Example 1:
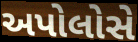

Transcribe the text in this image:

અપોલોસે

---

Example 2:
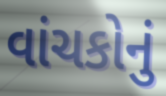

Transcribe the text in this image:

વાંચકોનું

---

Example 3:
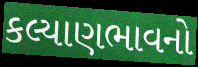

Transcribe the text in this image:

કલ્યાણભાવનો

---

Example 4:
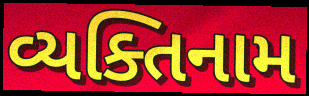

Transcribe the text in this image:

વ્યક્તિનામ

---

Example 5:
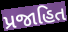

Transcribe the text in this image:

પ્રજાહિત